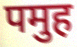
पमुह